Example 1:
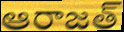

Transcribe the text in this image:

ఆరాజత్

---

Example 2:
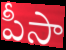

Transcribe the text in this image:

పీసా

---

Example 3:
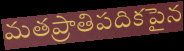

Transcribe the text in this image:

మతప్రాతిపదికపైన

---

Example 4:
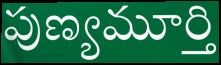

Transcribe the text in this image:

పుణ్యమూర్తి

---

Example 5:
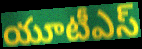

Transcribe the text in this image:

యూటీఎస్